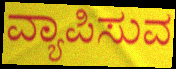
ವ್ಯಾಪಿಸುವ